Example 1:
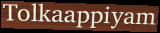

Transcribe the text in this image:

Tolkaappiyam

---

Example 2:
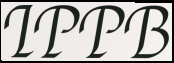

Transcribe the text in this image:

IPPB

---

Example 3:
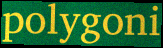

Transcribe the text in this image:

polygoni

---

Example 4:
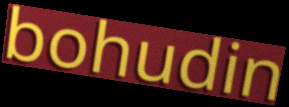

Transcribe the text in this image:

bohudin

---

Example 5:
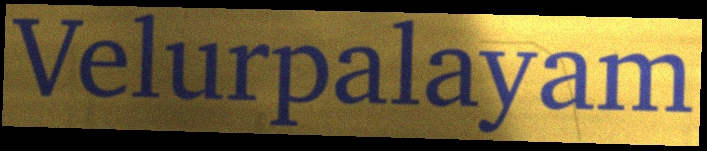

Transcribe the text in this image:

Velurpalayam